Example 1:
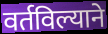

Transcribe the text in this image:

वर्तविल्याने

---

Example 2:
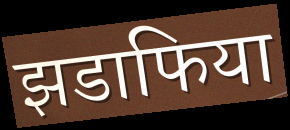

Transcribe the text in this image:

झडाफिया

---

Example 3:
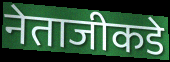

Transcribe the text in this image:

नेताजीकडे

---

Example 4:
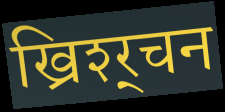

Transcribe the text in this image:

ख्रिश्र्चन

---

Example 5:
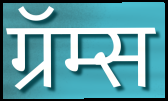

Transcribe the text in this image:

ग्रॅम्स